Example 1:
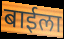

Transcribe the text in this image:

बाईला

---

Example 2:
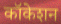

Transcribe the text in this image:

कॉकेशन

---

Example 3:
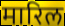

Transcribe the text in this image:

मारिल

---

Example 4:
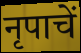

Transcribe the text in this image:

नृपाचें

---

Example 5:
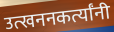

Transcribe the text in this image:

उत्खननकर्त्यांनी